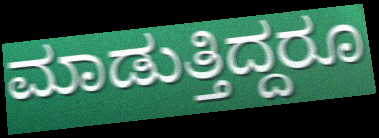
ಮಾಡುತ್ತಿದ್ದರೂ